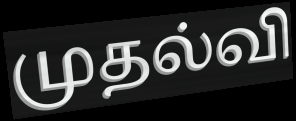
முதல்வி